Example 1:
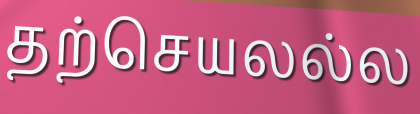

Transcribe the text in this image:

தற்செயலல்ல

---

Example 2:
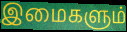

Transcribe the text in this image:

இமைகளும்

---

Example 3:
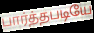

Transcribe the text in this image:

பார்த்தபடியே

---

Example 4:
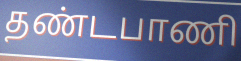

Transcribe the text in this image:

தண்டபாணி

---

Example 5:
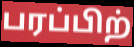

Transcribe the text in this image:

பரப்பிற்